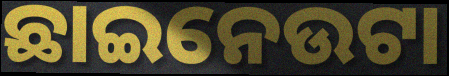
ଛାଇନେଉଟା